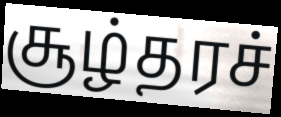
சூழ்தரச்